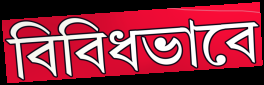
বিবিধভাবে